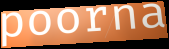
poorna